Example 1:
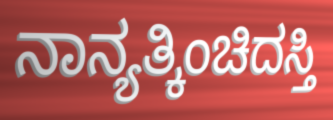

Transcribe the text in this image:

ನಾನ್ಯತ್ಕಿಂಚಿದಸ್ತಿ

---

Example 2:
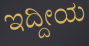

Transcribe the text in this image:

ಇದ್ದೀಯ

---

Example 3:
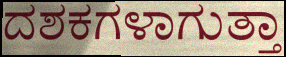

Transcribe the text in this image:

ದಶಕಗಳಾಗುತ್ತಾ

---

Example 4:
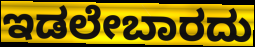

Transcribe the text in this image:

ಇಡಲೇಬಾರದು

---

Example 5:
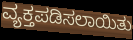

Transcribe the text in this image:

ವ್ಯಕ್ತಪಡಿಸಲಾಯಿತು